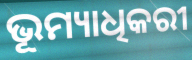
ଭୂମ୍ୟାଧିକରୀ